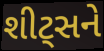
શીટ્સને